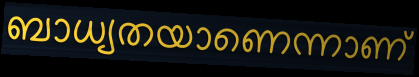
ബാധ്യതയാണെന്നാണ്